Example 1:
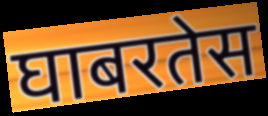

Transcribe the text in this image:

घाबरतेस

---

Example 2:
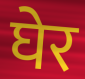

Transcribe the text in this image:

घेर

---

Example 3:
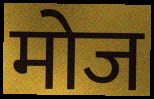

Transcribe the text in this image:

मोज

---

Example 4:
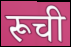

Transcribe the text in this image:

रूची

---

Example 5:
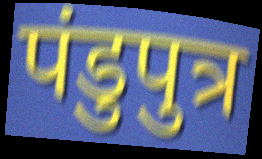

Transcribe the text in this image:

पंडुपुत्र